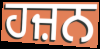
ਹਜ਼ਨ